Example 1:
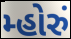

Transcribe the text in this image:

મ્હોરું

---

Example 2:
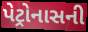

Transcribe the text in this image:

પેટ્રોનાસની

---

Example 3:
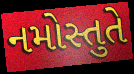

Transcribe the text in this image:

નમોસ્તુતે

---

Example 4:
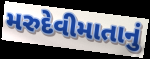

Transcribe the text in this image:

મરુદેવીમાતાનું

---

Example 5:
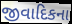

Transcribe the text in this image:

જીવાદિકના